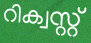
റിക്വസ്റ്റ്